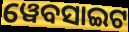
ୱେବସାଇଟ